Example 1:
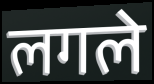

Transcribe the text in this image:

लगले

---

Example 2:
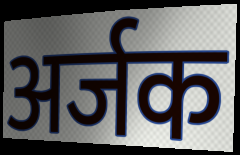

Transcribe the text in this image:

अर्जक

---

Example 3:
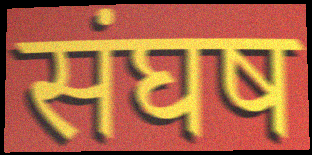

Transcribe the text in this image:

संघष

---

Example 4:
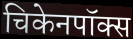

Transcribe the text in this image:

चिकेनपॉक्स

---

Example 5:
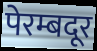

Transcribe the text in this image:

पेरम्बदूर